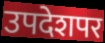
उपदेशपर